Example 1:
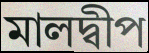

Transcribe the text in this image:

মালদ্বীপ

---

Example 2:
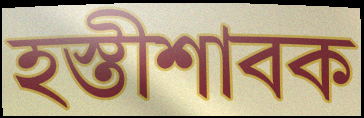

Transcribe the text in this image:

হস্তীশাবক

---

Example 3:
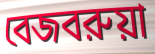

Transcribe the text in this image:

বেজবরুয়া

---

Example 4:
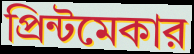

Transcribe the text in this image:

প্রিন্টমেকার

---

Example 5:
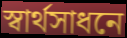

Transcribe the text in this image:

স্বার্থসাধনে